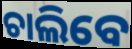
ଚାଲିବେ